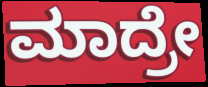
ಮಾದ್ರೇ